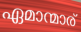
ഏമാന്മാര്